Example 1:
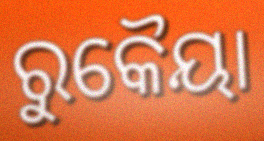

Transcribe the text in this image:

ରୁକୈୟା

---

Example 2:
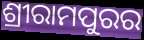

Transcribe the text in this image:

ଶ୍ରୀରାମପୁରର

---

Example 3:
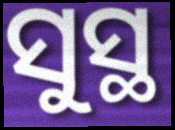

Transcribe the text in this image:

ସୁସ୍ଥ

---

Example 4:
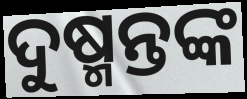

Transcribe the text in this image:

ଦୁଷ୍ମନ୍ତଙ୍କ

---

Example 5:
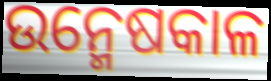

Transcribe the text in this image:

ଉନ୍ମେଷକାଳ